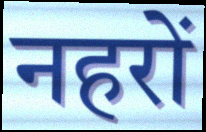
नहरों